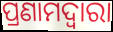
ପ୍ରଣାମଦ୍ୱାରା